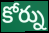
కోర్ను